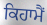
ਕਿਹਾਮੈਂ